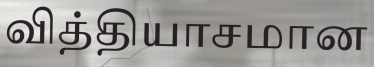
வித்தியாசமான